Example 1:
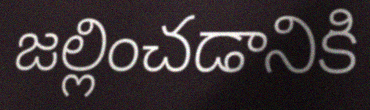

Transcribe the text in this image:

జల్లించడానికి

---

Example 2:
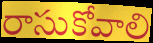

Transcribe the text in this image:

రాసుకోవాలి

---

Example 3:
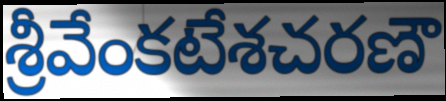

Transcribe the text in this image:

శ్రీవేంకటేశచరణౌ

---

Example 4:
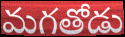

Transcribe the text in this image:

మగతోడు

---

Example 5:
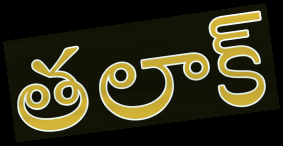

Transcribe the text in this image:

తలాక్